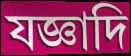
যজ্ঞাদি